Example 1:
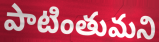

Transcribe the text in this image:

పాటింతుమని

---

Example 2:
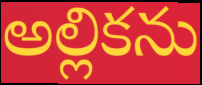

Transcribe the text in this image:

అల్లికను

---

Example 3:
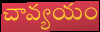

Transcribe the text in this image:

చావ్యయం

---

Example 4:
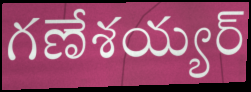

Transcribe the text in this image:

గణేశయ్యర్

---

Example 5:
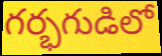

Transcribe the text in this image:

గర్భగుడిలో